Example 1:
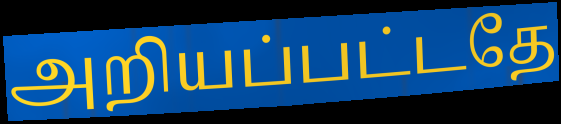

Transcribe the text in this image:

அறியப்பட்டதே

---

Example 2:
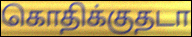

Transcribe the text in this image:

கொதிக்குதடா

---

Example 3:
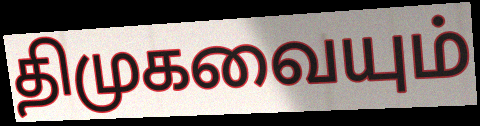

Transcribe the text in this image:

திமுகவையும்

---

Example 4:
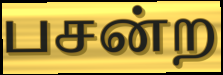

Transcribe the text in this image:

பசன்ற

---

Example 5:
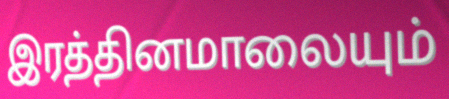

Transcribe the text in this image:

இரத்தினமாலையும்